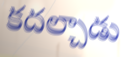
కదల్చాడు